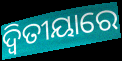
ଦ୍ୱିତୀୟାରେ